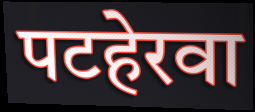
पटहेरवा